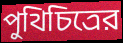
পুথিচিত্রের